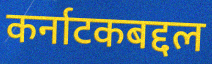
कर्नाटकबद्दल